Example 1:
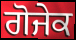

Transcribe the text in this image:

ਗੋਜੇਕ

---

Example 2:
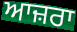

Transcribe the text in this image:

ਆਜ਼ਰਾ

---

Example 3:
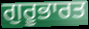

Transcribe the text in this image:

ਗੁਰੂਭਾਰਤ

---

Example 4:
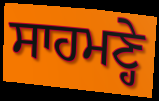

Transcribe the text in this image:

ਸਾਹਮਣ੍ਹੇ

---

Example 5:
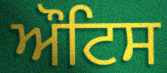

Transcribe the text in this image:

ਔਟਿਸ